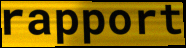
rapport